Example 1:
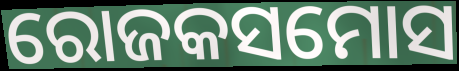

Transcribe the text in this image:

ରୋଜକସମୋସ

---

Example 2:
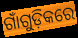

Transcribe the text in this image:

ଗାଁଗୁଡ଼ିକରେ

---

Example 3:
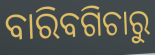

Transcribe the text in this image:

ବାରିବଗିଚାରୁ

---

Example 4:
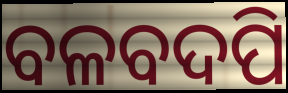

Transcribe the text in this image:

ବଳବଦପି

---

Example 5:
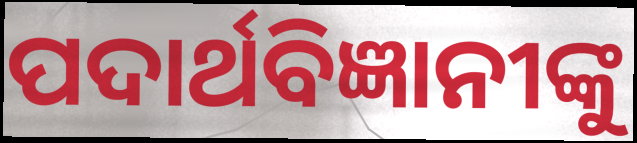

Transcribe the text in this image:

ପଦାର୍ଥବିଜ୍ଞାନୀଙ୍କୁ